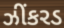
ઝીંકરડ